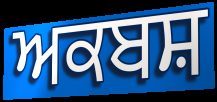
ਅਕਬਸ਼